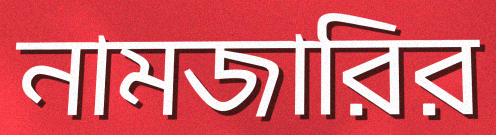
নামজারির